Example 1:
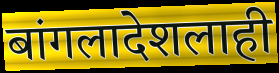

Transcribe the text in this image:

बांगलादेशलाही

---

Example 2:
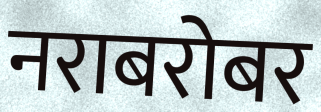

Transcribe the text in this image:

नराबरोबर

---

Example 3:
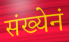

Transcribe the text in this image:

संख्येनं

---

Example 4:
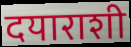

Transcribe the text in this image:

दयाराशी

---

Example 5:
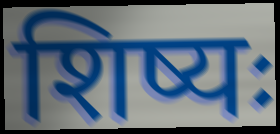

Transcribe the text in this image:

शिष्यः